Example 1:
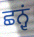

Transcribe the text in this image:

ਛਨ੍ਦਂ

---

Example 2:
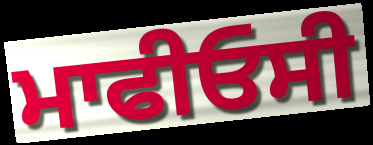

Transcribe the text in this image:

ਮਾਫੀਓਸੀ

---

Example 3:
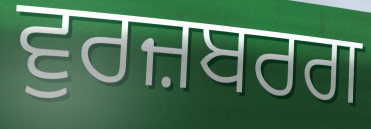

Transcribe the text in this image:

ਵੁਰਜ਼ਬਰਗ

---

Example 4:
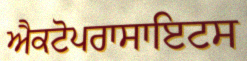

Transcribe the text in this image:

ਐਕਟੋਪਰਾਸਾਇਟਸ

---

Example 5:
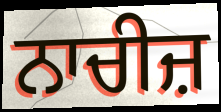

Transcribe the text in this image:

ਨਾਚੀਜ਼